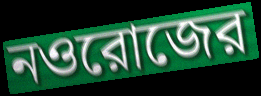
নওরোজের